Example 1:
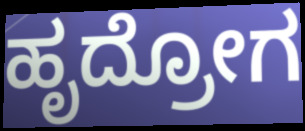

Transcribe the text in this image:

ಹೃದ್ರೋಗ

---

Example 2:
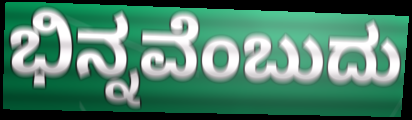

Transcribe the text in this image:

ಭಿನ್ನವೆಂಬುದು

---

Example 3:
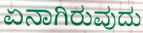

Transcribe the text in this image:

ಏನಾಗಿರುವುದು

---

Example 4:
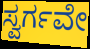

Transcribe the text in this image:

ಸ್ವರ್ಗವೇ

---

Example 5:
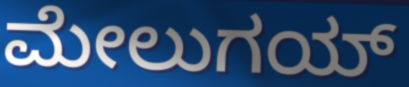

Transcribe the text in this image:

ಮೇಲುಗಯ್